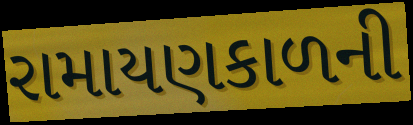
રામાયણકાળની